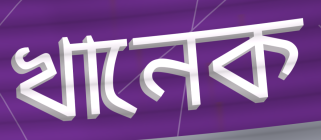
খানেক